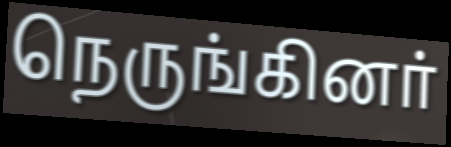
நெருங்கினர்